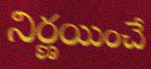
నిర్ణయించే